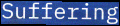
Suffering